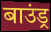
बाउंड्र